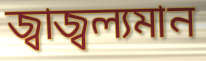
জ্বাজ্বল্যমান